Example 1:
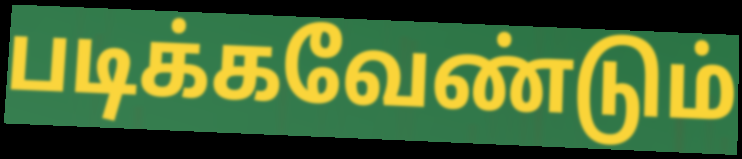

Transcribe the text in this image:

படிக்கவேண்டும்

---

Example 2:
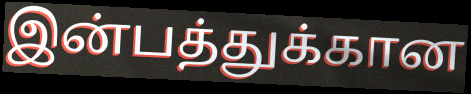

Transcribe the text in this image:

இன்பத்துக்கான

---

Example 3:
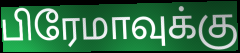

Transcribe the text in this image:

பிரேமாவுக்கு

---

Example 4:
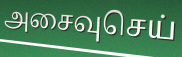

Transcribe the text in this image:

அசைவுசெய்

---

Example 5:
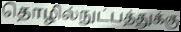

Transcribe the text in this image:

தொழில்நுட்பத்துக்கு